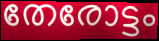
തേരോട്ടം